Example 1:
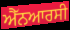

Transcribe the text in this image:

ਐੱਨਆਰਸੀ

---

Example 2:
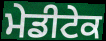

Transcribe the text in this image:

ਮੇਡੀਟੇਕ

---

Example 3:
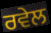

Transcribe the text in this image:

ਰਵੇਲ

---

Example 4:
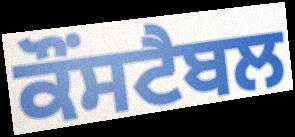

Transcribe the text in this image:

ਕੌਂਸਟੈਬਲ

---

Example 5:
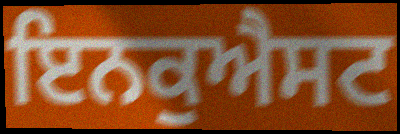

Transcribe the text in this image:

ਇਨਕੁਐਸਟ